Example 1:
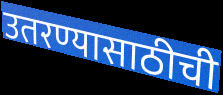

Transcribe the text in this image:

उतरण्यासाठीची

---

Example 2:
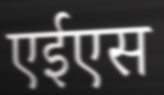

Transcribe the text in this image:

एईएस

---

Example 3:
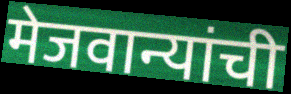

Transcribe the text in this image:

मेजवान्यांची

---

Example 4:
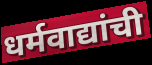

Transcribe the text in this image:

धर्मवाद्यांची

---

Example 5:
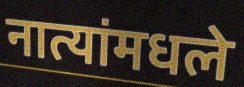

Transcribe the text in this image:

नात्यांमधले